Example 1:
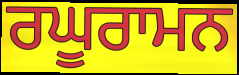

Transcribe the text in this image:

ਰਘੂਰਾਮਨ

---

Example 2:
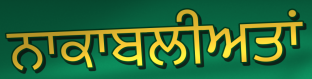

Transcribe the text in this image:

ਨਾਕਾਬਲੀਅਤਾਂ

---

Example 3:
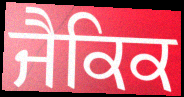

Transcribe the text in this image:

ਜੈਕਿਕ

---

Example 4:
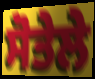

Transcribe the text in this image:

ਸੋਤੇਲੇ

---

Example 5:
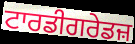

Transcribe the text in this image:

ਟਾਰਡੀਗਰੇਡਜ਼